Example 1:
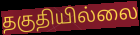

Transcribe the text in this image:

தகுதியில்லை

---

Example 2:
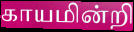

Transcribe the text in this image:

காயமின்றி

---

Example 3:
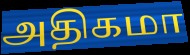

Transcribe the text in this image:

அதிகமா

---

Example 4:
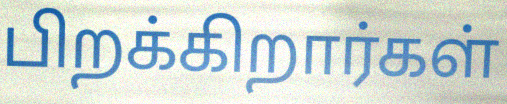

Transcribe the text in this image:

பிறக்கிறார்கள்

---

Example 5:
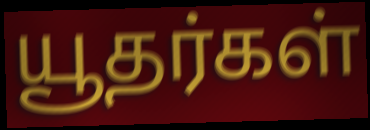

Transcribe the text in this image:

யூதர்கள்